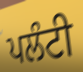
ਪਲੰਟੀ